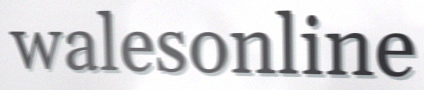
walesonline